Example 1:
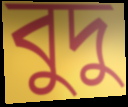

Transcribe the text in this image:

বুদু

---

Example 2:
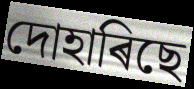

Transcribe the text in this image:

দোহাৰিছে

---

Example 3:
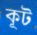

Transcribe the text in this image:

কূট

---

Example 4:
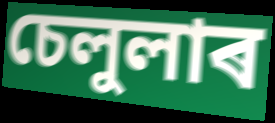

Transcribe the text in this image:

চেলুলাৰ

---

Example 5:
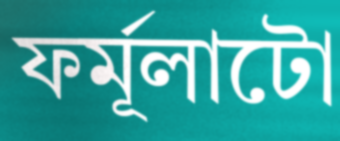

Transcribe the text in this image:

ফৰ্মূলাটো